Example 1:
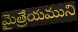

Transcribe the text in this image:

మైత్రేయముని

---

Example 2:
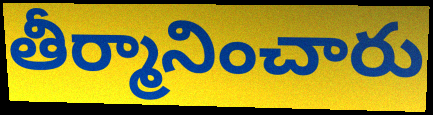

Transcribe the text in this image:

తీర్మానించారు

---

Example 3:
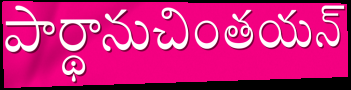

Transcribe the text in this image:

పార్థానుచింతయన్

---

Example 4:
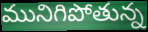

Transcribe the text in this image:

మునిగిపోతున్న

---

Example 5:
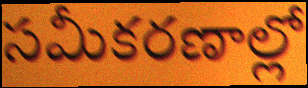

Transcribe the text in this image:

సమీకరణాల్లో